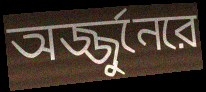
অর্জ্জুনেরে